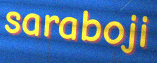
saraboji